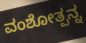
ವಂಶೋತ್ಪನ್ನ